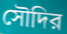
সৌদির